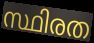
സ്ഥിരത